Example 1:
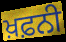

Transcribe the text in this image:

ਖ਼ਫ਼ਨੀ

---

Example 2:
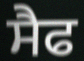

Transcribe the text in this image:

ਸੈਫ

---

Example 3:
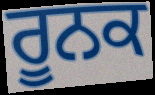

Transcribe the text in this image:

ਰੂਨਕ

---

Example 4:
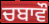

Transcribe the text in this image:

ਚਬਾਵੌ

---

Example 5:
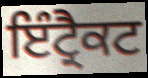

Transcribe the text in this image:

ਇੰਟ੍ਰੈਕਟ